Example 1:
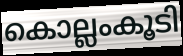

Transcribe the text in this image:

കൊല്ലംകൂടി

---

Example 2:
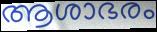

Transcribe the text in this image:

ആശാഭരം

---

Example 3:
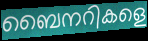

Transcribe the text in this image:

ബൈനറികളെ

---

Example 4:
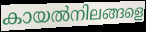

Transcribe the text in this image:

കായൽനിലങ്ങളെ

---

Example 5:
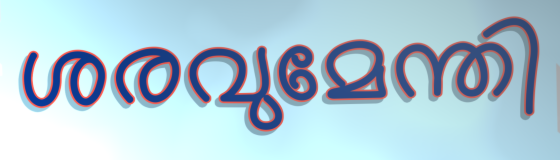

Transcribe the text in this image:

ശരവുമേന്തി